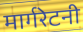
मार्गरेटनी